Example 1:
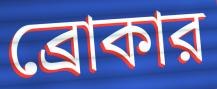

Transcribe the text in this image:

ব্রোকার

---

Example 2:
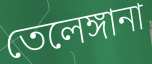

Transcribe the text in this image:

তেলেঙ্গানা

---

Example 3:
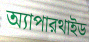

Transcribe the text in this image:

অ্যাপারথাইড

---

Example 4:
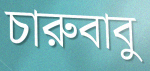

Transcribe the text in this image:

চারুবাবু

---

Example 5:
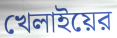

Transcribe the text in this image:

খেলাইয়ের